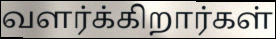
வளர்க்கிறார்கள்